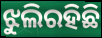
ଝୁଲିରହିଛି